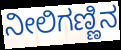
ನೀಲಿಗಣ್ಣಿನ